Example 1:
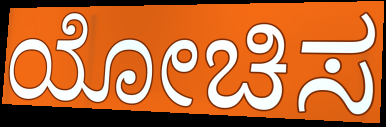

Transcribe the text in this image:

ಯೋಚಿಸ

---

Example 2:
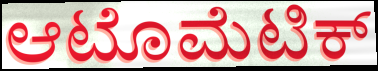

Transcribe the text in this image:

ಆಟೊಮೆಟಿಕ್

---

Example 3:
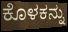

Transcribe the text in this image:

ಕೊಳಕನ್ನು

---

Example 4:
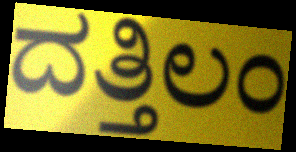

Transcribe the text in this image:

ದತ್ತಿಲಂ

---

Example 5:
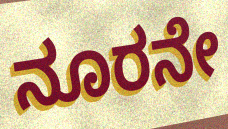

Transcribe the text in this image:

ನೂರನೇ